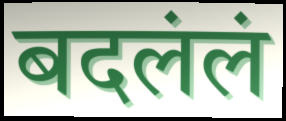
बदलंलं